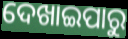
ଦେଖାଇପାରୁ